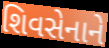
શિવસેનાને